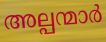
അല്പന്മാർ